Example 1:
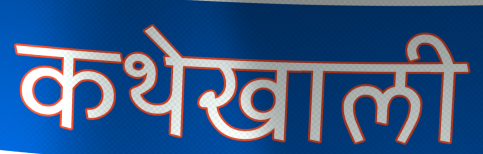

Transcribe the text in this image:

कथेखाली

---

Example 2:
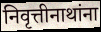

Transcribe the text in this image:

निवृत्तीनाथांना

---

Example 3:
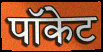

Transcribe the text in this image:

पॉकेट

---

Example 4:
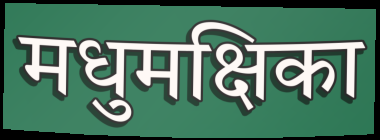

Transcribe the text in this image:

मधुमक्षिका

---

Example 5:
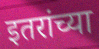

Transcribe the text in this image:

इतरांच्या